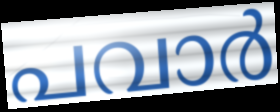
പവാർ